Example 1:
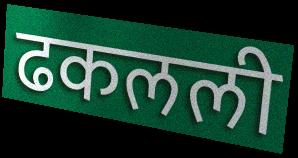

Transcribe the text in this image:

ढकलली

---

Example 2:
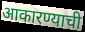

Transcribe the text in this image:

आकारण्याची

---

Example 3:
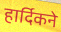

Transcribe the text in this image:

हार्दिकने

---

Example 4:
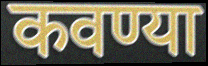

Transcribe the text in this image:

कवण्या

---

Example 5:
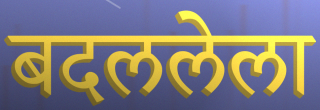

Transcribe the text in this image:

बदललेला